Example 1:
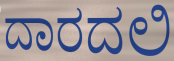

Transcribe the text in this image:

ದಾರದಲಿ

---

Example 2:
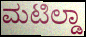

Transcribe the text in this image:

ಮಟಿಲ್ಡಾ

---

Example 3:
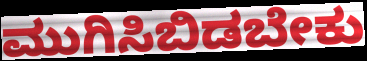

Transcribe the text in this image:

ಮುಗಿಸಿಬಿಡಬೇಕು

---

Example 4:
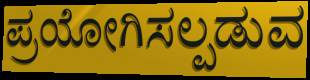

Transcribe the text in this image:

ಪ್ರಯೋಗಿಸಲ್ಪಡುವ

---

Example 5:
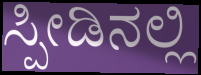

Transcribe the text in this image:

ಸ್ಪೀಡಿನಲ್ಲಿ